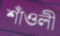
শাঁওলী